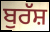
ਬੁਰੱਸ਼